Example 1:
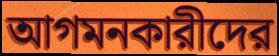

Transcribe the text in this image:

আগমনকারীদের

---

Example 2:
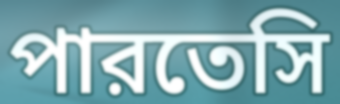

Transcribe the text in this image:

পারতেসি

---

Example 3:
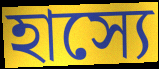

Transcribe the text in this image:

হাস্যে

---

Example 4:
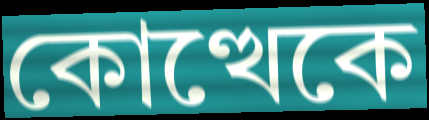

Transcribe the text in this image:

কোত্থেকে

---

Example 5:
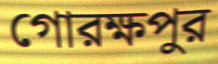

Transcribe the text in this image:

গোরক্ষপুর